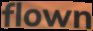
flown